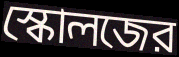
স্কোলজের